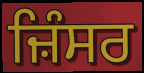
ਜ਼ਿੰਸਰ